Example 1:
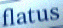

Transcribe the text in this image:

flatus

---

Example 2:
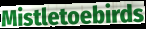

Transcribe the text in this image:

Mistletoebirds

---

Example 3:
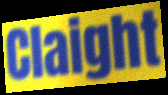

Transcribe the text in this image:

Claight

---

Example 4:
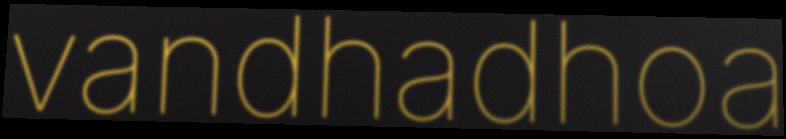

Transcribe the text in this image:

vandhadhoa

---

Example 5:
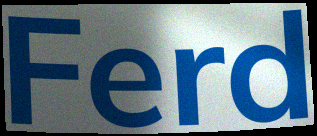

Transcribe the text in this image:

Ferd